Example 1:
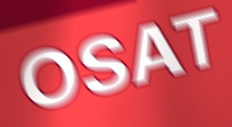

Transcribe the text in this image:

OSAT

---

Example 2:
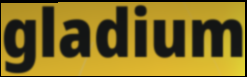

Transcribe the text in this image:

gladium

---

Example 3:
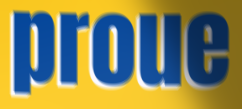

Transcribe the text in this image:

proue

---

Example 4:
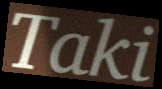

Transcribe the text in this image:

Taki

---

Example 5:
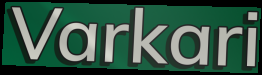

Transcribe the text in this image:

Varkari